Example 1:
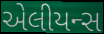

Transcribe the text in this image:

એલીયન્સ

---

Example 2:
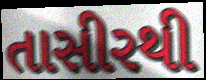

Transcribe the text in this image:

તાસીરથી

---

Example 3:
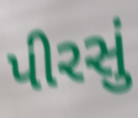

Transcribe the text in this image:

પીરસું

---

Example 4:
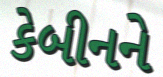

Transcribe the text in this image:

કેબીનને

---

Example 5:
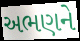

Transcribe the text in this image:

અભણને